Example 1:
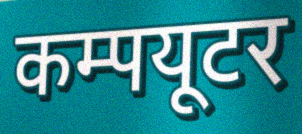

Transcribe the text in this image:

कम्पयूटर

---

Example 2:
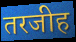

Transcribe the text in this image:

तरजीह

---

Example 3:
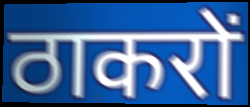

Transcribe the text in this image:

ठाकरों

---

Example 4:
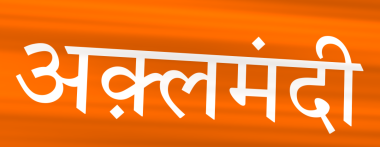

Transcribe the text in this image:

अक़्लमंदी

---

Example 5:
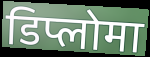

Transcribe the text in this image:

डिप्लोमा